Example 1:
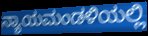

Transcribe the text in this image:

ನ್ಯಾಯಮಂಡಳಿಯಲ್ಲಿ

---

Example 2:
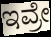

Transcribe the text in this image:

ಇವ್ರೇ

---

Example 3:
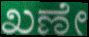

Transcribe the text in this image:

ಖಣೇ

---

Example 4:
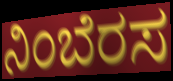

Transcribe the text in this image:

ನಿಂಬೆರಸ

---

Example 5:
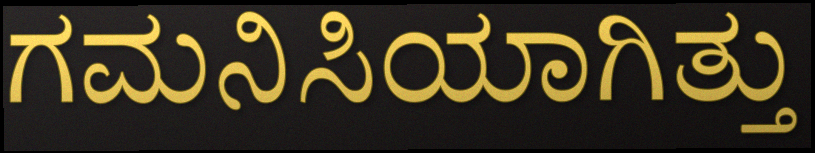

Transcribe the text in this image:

ಗಮನಿಸಿಯಾಗಿತ್ತು